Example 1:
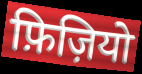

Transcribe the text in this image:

फ़िज़ियो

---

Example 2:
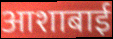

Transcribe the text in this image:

आशाबाई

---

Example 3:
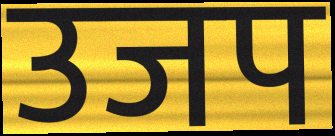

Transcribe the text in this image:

उजप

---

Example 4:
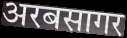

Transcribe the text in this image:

अरबसागर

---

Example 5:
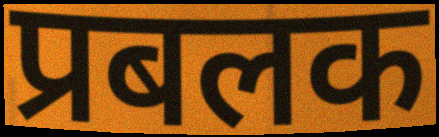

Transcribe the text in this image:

प्रबलक